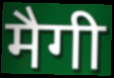
मैगी